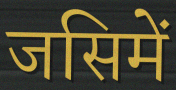
जसिमें